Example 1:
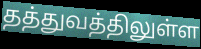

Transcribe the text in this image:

தத்துவத்திலுள்ள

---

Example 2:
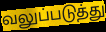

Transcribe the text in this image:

வலுப்படுத்து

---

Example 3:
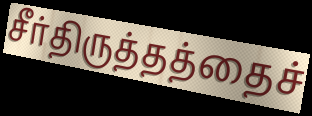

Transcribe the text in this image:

சீர்திருத்தத்தைச்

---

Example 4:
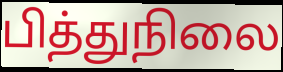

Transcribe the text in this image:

பித்துநிலை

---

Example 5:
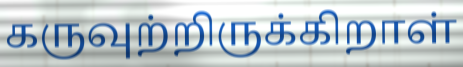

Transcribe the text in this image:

கருவுற்றிருக்கிறாள்